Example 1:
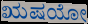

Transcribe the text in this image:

ಋಷಯೋ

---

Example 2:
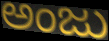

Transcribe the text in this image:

ಅಂಜು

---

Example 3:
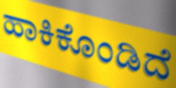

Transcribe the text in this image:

ಹಾಕಿಕೊಂಡಿದೆ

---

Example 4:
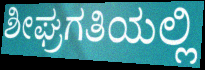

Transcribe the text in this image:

ಶೀಘ್ರಗತಿಯಲ್ಲಿ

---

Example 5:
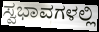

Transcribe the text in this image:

ಸ್ವಭಾವಗಳಲ್ಲಿ